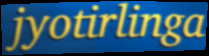
jyotirlinga